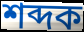
শব্দক